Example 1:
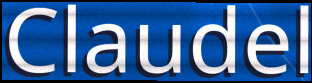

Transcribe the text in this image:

Claudel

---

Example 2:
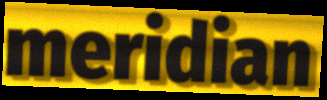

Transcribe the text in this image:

meridian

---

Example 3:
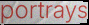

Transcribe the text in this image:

portrays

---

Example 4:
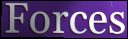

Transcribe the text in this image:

Forces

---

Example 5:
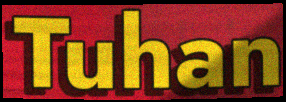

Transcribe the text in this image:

Tuhan